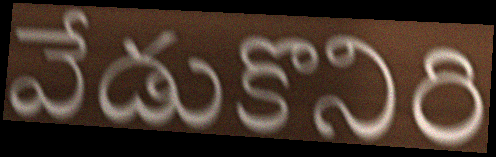
వేడుకొనిరి